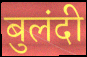
बुलंदी